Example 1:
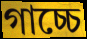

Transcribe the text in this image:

গাচ্চে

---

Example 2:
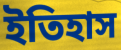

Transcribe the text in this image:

ইতিহাস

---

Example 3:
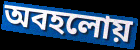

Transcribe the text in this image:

অবহলোয়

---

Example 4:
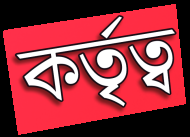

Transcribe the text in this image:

কর্তৃত্ব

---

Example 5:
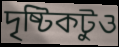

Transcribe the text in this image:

দৃষ্টিকটুও